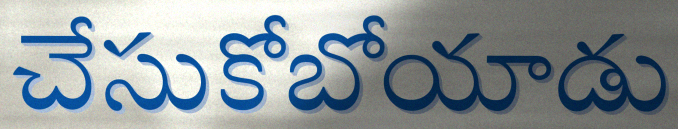
చేసుకోబోయాడు